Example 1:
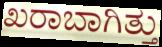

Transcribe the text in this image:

ಖರಾಬಾಗಿತ್ತು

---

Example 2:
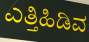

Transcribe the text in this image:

ಎತ್ತಿಹಿಡಿವ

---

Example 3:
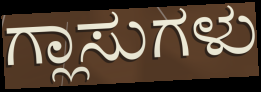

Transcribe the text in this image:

ಗ್ಲಾಸುಗಳು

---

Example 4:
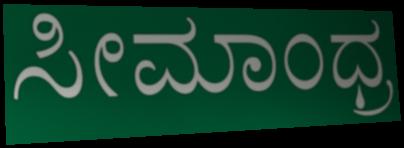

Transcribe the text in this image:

ಸೀಮಾಂಧ್ರ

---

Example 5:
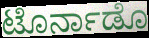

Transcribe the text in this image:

ಟೊರ್ನಾಡೊ